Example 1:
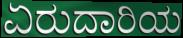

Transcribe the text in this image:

ಏರುದಾರಿಯ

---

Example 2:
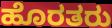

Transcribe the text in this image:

ಹೊರತರು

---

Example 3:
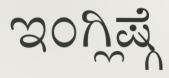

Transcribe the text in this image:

ಇಂಗ್ಲಿಷ್ಗೆ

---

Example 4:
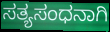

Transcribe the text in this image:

ಸತ್ಯಸಂಧನಾಗಿ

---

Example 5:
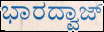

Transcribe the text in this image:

ಭಾರದ್ವಾಜ್